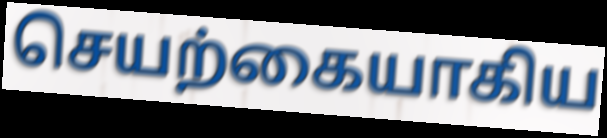
செயற்கையாகிய